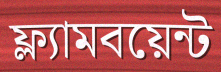
ফ্ল্যামবয়েন্ট